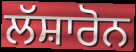
ਲੱਸ਼ਾਰੋਨ